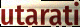
utarati